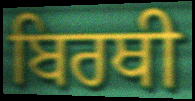
ਬਿਰਥੀ